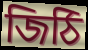
জিঠি